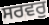
ਸਰਵਰੁ